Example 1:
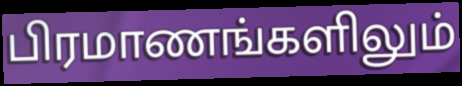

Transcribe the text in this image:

பிரமாணங்களிலும்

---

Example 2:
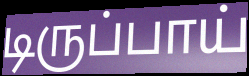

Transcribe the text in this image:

டிருப்பாய்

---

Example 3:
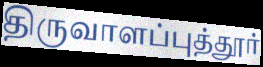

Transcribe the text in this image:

திருவாளப்புத்தூர்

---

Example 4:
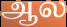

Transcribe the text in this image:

ஆல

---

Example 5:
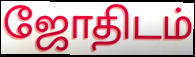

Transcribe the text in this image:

ஜோதிடம்